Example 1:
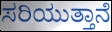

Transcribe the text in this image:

ಸರಿಯುತ್ತಾನೆ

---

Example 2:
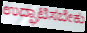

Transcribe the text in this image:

ಉದ್ಘಾಟಿಸಬೇಕು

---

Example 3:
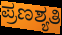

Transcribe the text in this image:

ಪ್ರಣಶ್ಯತಿ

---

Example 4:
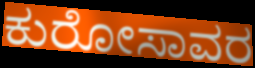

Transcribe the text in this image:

ಕುರೋಸಾವರ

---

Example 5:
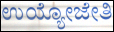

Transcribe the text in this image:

ಉಯ್ಯೋಜೇತಿ